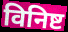
विनिष्ट